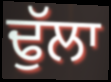
ਢੁੱਲਾ